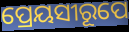
ପ୍ରେୟସୀରୂପେ